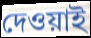
দেওয়াই